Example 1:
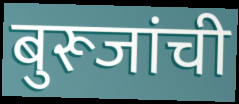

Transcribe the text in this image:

बुरूजांची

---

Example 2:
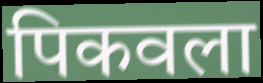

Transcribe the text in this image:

पिकवला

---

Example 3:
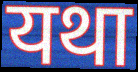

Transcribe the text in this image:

यथा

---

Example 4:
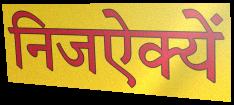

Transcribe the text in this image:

निजऐक्यें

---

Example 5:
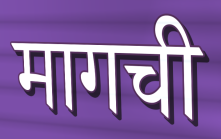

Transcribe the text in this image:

मागची